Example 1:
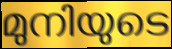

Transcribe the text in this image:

മുനിയുടെ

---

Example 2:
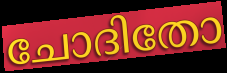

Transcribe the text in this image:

ചോദിതോ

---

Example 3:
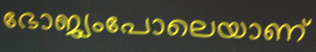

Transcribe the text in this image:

ഭോജ്യംപോലെയാണ്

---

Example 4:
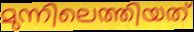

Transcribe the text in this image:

മുന്നിലെത്തിയത്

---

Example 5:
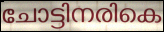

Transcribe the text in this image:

ചോട്ടിനരികെ